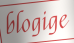
blogige